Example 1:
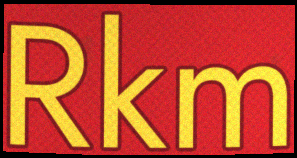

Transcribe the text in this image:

Rkm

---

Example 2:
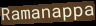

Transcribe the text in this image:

Ramanappa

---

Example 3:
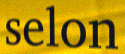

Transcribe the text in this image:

selon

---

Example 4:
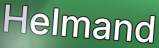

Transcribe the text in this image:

Helmand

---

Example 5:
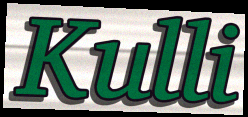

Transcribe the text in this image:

Kulli